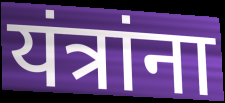
यंत्रांना